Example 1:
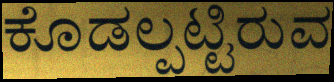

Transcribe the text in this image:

ಕೊಡಲ್ಪಟ್ಟಿರುವ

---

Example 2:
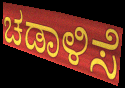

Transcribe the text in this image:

ಚಡಾಳಿಸೆ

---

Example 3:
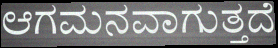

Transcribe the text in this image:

ಆಗಮನವಾಗುತ್ತದೆ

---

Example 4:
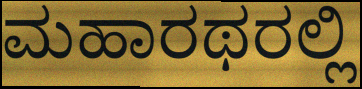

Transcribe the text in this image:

ಮಹಾರಥರಲ್ಲಿ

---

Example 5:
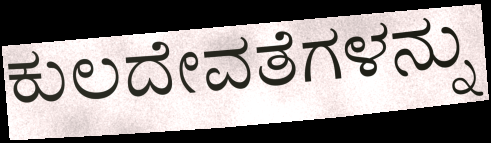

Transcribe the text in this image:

ಕುಲದೇವತೆಗಳನ್ನು